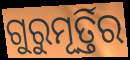
ଗୁରୁମୂର୍ତ୍ତିର